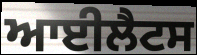
ਆਈਲੈਟਸ